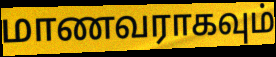
மாணவராகவும்